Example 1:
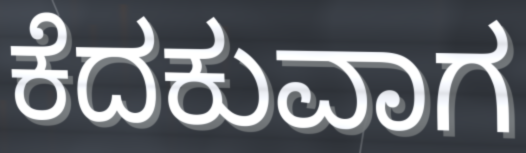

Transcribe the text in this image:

ಕೆದಕುವಾಗ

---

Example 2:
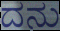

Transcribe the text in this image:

ದನು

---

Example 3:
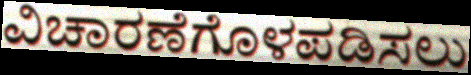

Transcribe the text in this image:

ವಿಚಾರಣೆಗೊಳಪಡಿಸಲು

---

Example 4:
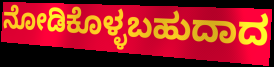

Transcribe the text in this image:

ನೋಡಿಕೊಳ್ಳಬಹುದಾದ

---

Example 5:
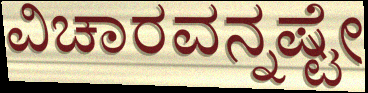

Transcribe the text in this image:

ವಿಚಾರವನ್ನಷ್ಟೇ